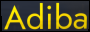
Adiba